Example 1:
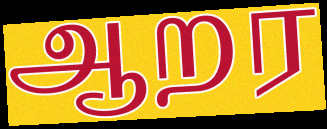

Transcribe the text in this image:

ஆறர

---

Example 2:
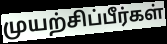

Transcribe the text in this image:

முயற்சிப்பீர்கள்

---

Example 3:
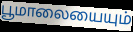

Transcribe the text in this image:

பூமாலையையும்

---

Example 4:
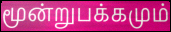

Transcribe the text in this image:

மூன்றுபக்கமும்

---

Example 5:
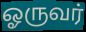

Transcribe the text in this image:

ஓருவர்